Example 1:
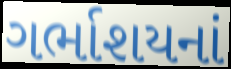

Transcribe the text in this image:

ગર્ભાશયનાં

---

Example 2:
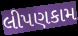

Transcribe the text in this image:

લીપણકામ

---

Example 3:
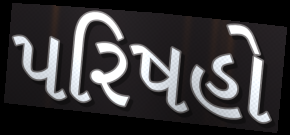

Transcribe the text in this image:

પરિષહો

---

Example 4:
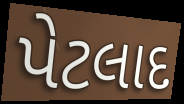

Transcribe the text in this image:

પેટલાદ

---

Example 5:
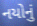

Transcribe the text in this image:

નયોનું